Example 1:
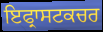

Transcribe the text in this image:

ਇਫ੍ਰਾਸਟਕਚਰ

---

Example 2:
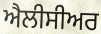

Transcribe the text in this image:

ਐਲੀਸੀਅਰ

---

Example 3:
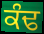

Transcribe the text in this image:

ਕੰਢ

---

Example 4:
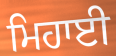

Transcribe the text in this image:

ਮਿਹਾਈ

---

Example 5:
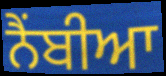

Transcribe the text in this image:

ਨੈਂਬੀਆ